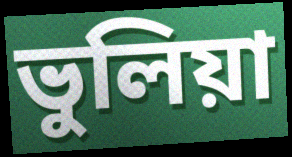
ভুলিয়া